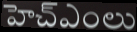
హెచ్ఎంలు